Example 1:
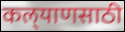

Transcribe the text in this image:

कल्याणसाठी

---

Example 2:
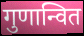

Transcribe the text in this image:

गुणान्वित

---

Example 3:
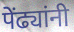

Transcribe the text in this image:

पेंढ्यांनी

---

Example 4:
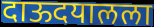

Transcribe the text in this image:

दाऊदयालला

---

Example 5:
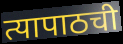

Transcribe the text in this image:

त्यापाठची